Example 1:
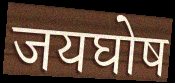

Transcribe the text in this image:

जयघोष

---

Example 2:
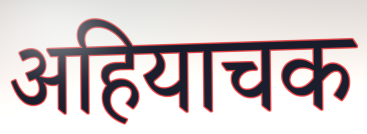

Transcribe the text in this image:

अहियाचक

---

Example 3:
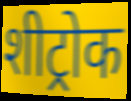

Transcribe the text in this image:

शीट्रोक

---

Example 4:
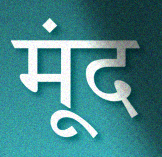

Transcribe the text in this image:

मूंद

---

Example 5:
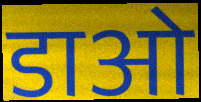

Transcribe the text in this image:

डाओ